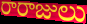
రారాజులు